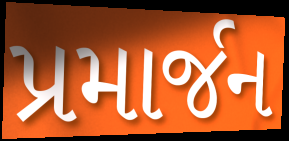
પ્રમાર્જન